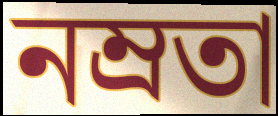
নম্ৰতা